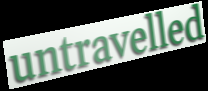
untravelled